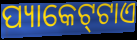
ପ୍ୟାକେଟ୍‌ଟାଏ